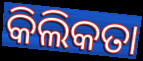
କିଲିକତା